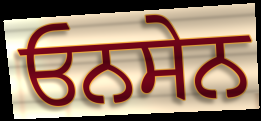
ਓਨਸੇਨ